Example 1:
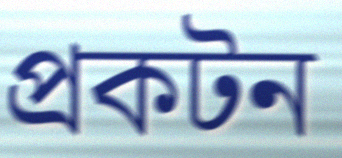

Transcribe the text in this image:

প্রকটন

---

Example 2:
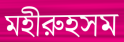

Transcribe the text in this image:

মহীরুহসম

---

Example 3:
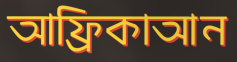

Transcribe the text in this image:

আফ্রিকাআন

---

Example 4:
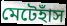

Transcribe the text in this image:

মেটেহাঁস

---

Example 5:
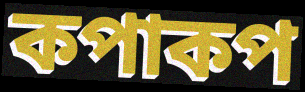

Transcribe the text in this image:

কপাকপ